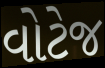
વોટેજ